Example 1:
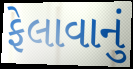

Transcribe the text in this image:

ફેલાવાનું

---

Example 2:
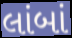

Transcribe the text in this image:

લાંબાં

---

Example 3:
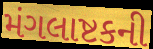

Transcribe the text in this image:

મંગલાષ્ટકની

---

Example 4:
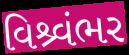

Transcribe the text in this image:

વિશ્ર્વંભર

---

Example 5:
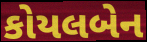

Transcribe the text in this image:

કોયલબેન